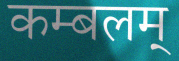
कम्बलम्